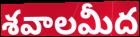
శవాలమీద